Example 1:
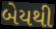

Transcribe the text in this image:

બેયથી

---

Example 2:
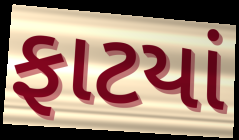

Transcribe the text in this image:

ફાટયાં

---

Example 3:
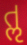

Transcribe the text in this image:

તૢ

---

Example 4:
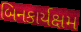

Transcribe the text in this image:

બિનકાર્યક્ષમ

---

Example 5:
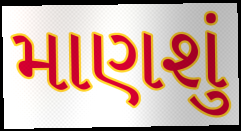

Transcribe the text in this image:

માણશું